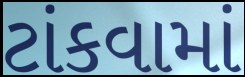
ટાંકવામાં